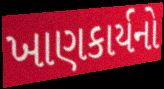
ખાણકાર્યનો